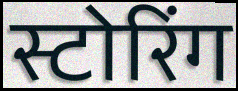
स्टोरिंग